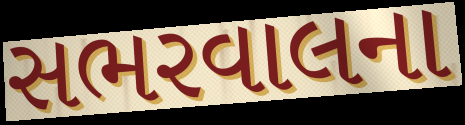
સભરવાલના